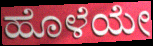
ಹೊಳೆಯೇ